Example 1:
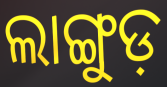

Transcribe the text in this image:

ଲାଙ୍ଗୁଡ଼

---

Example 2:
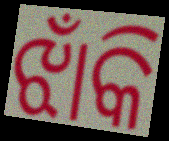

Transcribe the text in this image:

ଝାଁକି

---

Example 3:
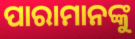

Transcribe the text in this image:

ପାରାମାନଙ୍କୁ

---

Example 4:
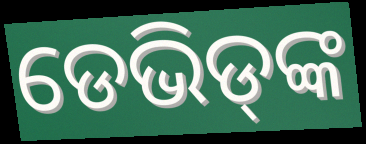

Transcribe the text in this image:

ଡେଭିଡ୍‌ଙ୍କ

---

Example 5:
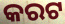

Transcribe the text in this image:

କରଟ